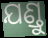
ଯଣ୍ଡୁ